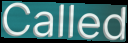
Called